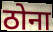
ठोना